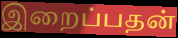
இறைப்பதன்